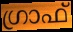
ഗ്രാഫ്